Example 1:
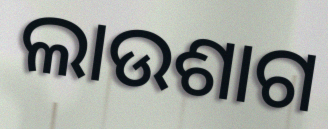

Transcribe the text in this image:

ଲାଉଶାଗ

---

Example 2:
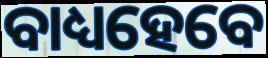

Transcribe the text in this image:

ବାଧ୍ୟହେବେ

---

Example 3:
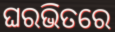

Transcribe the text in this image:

ଘରଭିତରେ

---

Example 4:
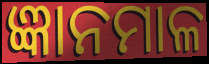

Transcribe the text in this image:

ଜ୍ଞାନମାଳ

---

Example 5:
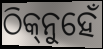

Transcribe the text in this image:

ଠିକ୍‌ନୁହେଁ